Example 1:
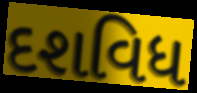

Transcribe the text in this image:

દશવિધ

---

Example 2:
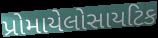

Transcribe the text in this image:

પ્રોમાયેલોસાયટિક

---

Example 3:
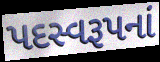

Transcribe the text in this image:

પદસ્વરૂપનાં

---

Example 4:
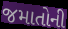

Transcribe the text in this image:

જમાતોની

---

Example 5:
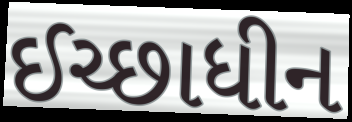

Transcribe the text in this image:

ઈચ્છાધીન